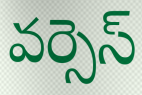
వర్సెస్